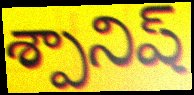
శ్పానిష్